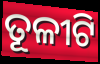
ତୂଳୀଟି